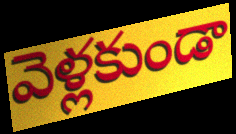
వెళ్లకుండా